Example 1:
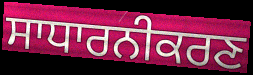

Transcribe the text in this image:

ਸਾਧਾਰਨੀਕਰਣ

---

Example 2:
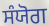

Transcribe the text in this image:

ਸੰਯੋਗ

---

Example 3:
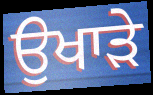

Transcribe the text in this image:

ਉਖਾੜੇ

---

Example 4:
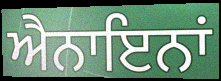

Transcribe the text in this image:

ਐਨਾਇਨਾਂ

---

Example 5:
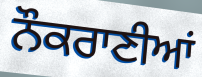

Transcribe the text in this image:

ਨੌਕਰਾਣੀਆਂ